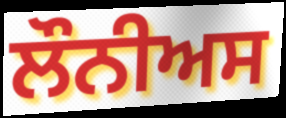
ਲੌਨੀਅਸ